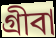
গ্রীবা